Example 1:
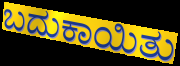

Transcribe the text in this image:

ಬದುಕಾಯಿತು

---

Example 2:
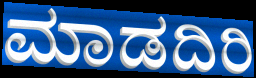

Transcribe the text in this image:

ಮಾಡದಿರಿ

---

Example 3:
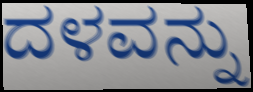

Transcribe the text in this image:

ದಳವನ್ನು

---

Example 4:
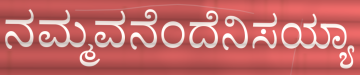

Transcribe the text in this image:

ನಮ್ಮವನೆಂದೆನಿಸಯ್ಯಾ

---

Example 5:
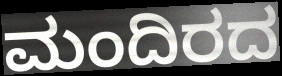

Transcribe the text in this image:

ಮಂದಿರದ